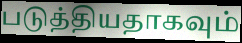
படுத்தியதாகவும்